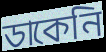
ডাকেনি